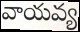
వాయవ్య